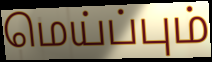
மெய்ப்பும்